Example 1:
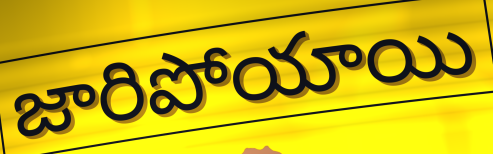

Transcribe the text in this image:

జారిపోయాయి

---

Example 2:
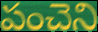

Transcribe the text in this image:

పంచెని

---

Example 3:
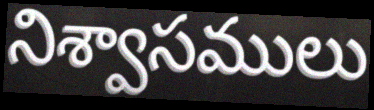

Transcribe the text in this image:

నిశ్వాసములు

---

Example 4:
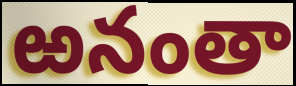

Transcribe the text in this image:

ఱనంతా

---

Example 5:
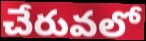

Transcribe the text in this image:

చేరువలో